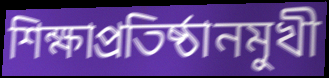
শিক্ষাপ্রতিষ্ঠানমুখী